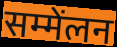
सम्मेंलन